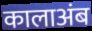
कालाअंब